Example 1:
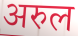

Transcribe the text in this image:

अरुल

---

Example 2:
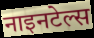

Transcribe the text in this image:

नाइनटेल्स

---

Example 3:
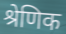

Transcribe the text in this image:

श्रेणिक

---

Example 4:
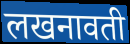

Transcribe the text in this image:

लखनावती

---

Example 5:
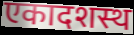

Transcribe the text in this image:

एकादशस्थ